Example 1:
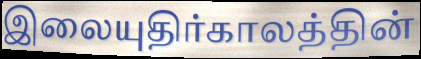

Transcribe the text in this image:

இலையுதிர்காலத்தின்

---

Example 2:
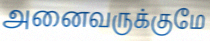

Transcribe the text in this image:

அனைவருக்குமே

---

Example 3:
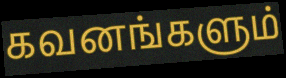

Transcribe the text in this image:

கவனங்களும்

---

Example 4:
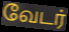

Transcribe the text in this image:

வேடர்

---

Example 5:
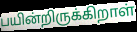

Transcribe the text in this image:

பயின்றிருக்கிறாள்